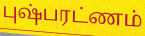
புஷ்பரட்ணம்